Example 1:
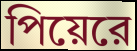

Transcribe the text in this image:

পিয়েরে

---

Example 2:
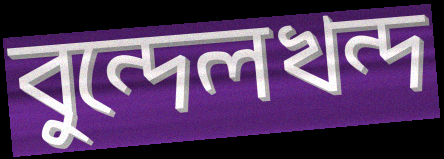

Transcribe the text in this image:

বুন্দেলখন্দ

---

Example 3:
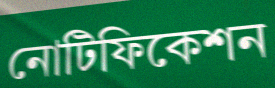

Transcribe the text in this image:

নোটিফিকেশন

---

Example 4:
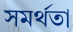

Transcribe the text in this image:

সমর্থতা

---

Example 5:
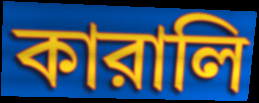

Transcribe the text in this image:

কারালি